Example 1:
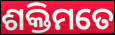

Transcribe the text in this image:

ଶକ୍ତିମତେ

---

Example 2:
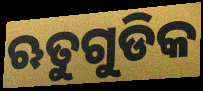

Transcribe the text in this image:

ଋତୁଗୁଡିକ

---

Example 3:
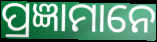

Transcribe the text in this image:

ପ୍ରଜ୍ଞାମାନେ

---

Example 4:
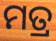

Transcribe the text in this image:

ମତ୍ର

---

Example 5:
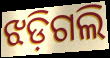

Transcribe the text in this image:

ଝଡ଼ିଗଲି